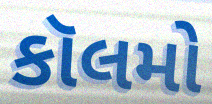
કૉલમો